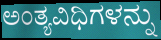
ಅಂತ್ಯವಿಧಿಗಳನ್ನು